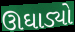
ઊઘાડ્યો